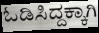
ಓಡಿಸಿದ್ದಕ್ಕಾಗಿ